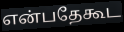
என்பதேகூட